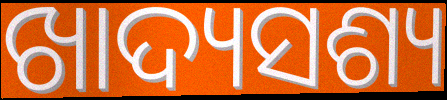
ଖାଦ୍ୟସଶ୍ୟ